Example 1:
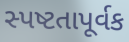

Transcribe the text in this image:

સ્પષ્ટતાપૂર્વક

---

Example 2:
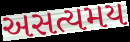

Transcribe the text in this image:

અસત્યમય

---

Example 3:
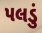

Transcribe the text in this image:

પલડું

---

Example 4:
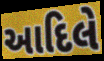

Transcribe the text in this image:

આદિલે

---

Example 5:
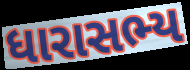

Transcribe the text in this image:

ધારાસભ્ય